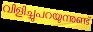
വിളിച്ചുപറയുന്നുണ്ട്